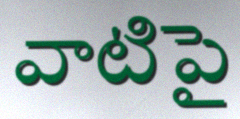
వాటిపై